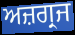
ਅਜ਼ਗ੍ਰਜ